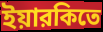
ইয়ারকিতে